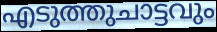
എടുത്തുചാട്ടവും